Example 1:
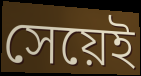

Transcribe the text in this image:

সেয়েই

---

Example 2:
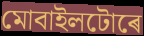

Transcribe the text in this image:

মোবাইলটোৰে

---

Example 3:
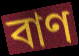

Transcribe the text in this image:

বাণ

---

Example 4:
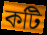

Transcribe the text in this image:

কটি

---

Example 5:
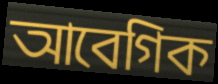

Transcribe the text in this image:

আবেগিক